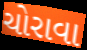
ચોરાવા